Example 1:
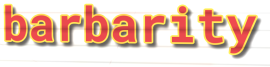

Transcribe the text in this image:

barbarity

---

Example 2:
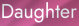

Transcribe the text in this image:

Daughter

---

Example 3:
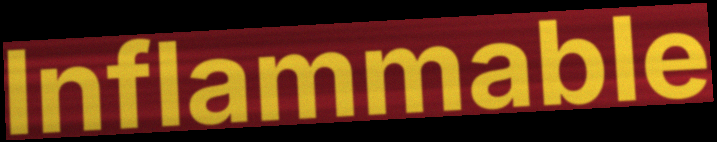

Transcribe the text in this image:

Inflammable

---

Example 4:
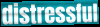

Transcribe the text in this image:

distressful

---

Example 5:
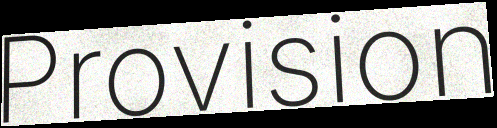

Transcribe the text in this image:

Provision